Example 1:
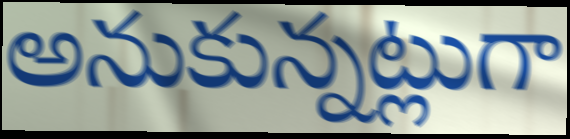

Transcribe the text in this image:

అనుకున్నట్లుగా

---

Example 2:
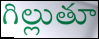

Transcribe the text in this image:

గిల్లుతూ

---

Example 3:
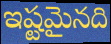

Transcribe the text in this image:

ఇష్టమైనది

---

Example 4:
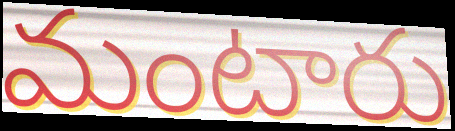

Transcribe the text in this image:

మంటారు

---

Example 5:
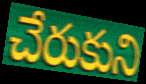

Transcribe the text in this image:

చేరుకుని